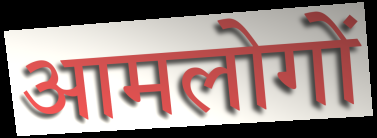
आमलोगों